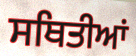
ਸਥਿਤੀਆਂ